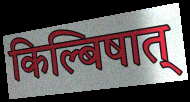
किल्बिषात्